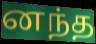
னந்த